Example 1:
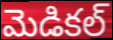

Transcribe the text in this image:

మెడికల్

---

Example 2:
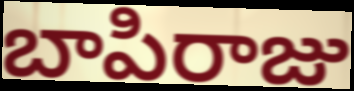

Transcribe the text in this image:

బాపిరాజు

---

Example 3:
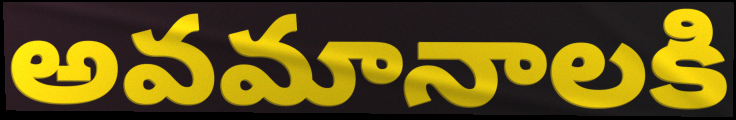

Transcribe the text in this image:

అవమానాలకి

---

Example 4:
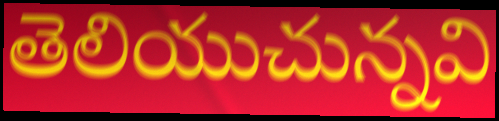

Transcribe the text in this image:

తెలియుచున్నవి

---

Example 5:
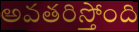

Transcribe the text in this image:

అవతరిస్తోంది